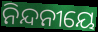
ନିନ୍ଦନୀୟେ